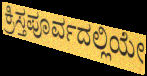
ಕ್ರಿಸ್ತಪೂರ್ವದಲ್ಲಿಯೇ